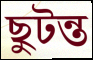
ছুটন্ত